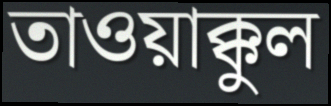
তাওয়াক্কুল